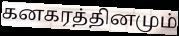
கனகரத்தினமும்